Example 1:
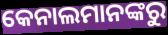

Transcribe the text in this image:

କେନାଲମାନଙ୍କରୁ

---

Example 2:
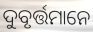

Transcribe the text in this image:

ଦୁବୃର୍ତ୍ତମାନେ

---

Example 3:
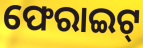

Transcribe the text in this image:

ଫେରାଇଟ୍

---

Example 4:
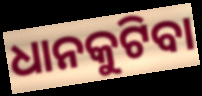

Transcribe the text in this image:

ଧାନକୁଟିବା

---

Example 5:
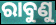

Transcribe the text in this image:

ରାବୁଣୁ